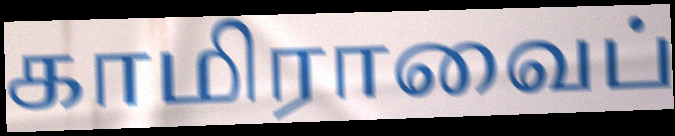
காமிராவைப்